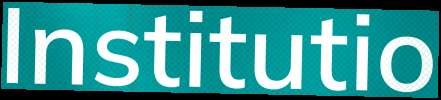
Institutio